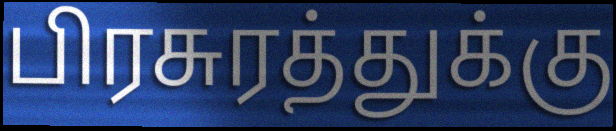
பிரசுரத்துக்கு